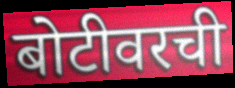
बोटीवरची